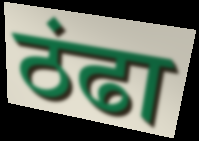
ठंढा